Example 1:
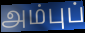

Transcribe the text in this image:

அம்புப்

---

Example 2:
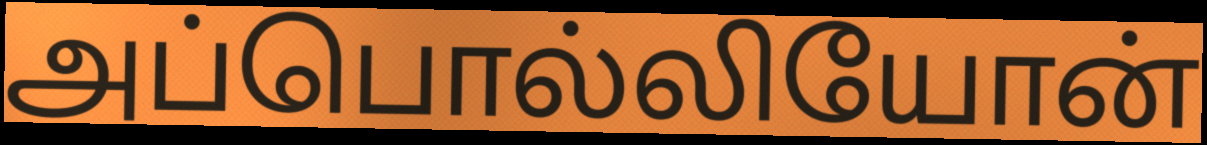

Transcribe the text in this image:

அப்பொல்லியோன்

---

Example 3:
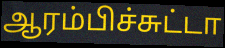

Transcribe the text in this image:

ஆரம்பிச்சுட்டா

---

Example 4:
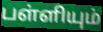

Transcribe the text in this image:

பள்ளியும்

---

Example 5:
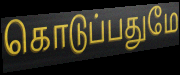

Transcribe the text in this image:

கொடுப்பதுமே